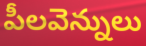
పీలవెన్నులు